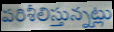
పరిశీలిస్తున్నట్లు